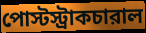
পোস্টস্ট্রাকচারাল